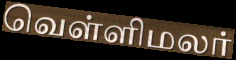
வெள்ளிமலர்